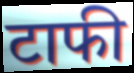
टाफी